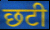
छटी